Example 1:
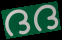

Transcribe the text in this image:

ദദ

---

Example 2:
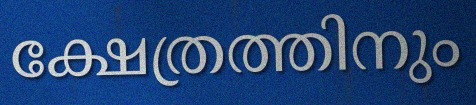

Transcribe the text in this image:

ക്ഷേത്രത്തിനും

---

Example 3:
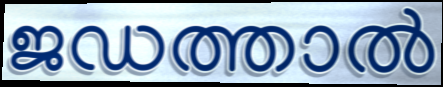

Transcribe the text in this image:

ജഡത്താൽ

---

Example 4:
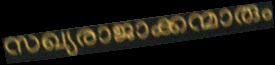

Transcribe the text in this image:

സഖ്യരാജാക്കന്മാരും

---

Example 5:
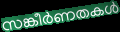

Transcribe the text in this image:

സങ്കീർണതകൾ